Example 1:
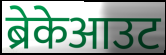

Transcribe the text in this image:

ब्रेकेआउट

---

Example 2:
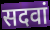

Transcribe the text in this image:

सदवां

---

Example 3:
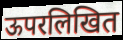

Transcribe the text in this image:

ऊपरलिखित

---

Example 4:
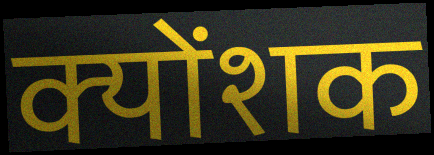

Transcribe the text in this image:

क्योंशक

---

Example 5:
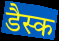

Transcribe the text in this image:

डैस्क